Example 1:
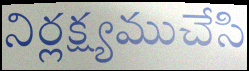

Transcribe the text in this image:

నిర్లక్ష్యముచేసి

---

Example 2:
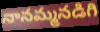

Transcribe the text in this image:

నానమ్మనడిగి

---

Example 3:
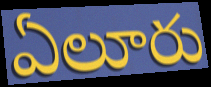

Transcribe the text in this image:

ఏలూరు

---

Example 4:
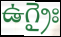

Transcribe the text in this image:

ఉగ్రైః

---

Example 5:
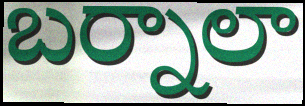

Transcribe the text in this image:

బర్నాలా